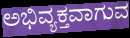
ಅಭಿವ್ಯಕ್ತವಾಗುವ